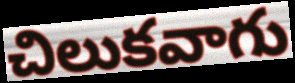
చిలుకవాగు